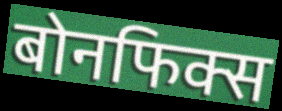
बोनफिक्स